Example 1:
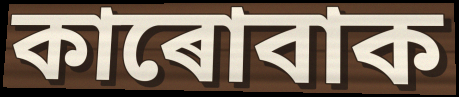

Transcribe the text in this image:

কাৰোবাক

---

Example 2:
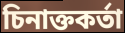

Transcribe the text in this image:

চিনাক্তকৰ্তা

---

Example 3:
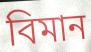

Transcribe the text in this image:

বিমান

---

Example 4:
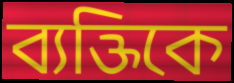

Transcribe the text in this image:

ব্যক্তিকে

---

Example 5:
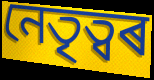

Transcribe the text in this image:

নেতৃত্বৰ